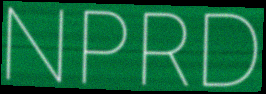
NPRD